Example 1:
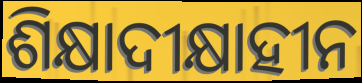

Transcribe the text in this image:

ଶିକ୍ଷାଦୀକ୍ଷାହୀନ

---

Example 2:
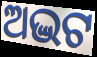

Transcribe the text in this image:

ଅଦ୍ଭଟ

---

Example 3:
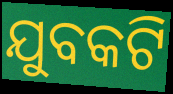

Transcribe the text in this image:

ଯୁବକଟି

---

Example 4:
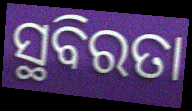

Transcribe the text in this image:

ସ୍ଥବିରତା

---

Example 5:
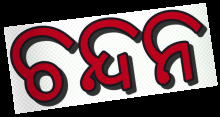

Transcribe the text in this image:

ଚନ୍ଦନ